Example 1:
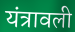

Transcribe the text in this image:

यंत्रावली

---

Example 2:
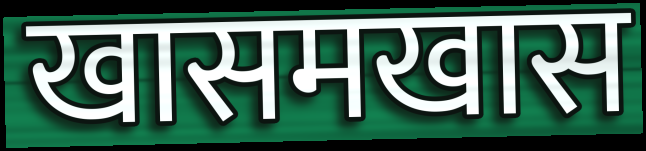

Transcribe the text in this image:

खासमखास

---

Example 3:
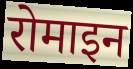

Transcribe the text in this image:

रोमाइन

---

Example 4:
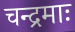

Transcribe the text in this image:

चन्द्रमाः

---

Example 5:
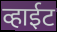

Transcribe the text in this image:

व्हाईट